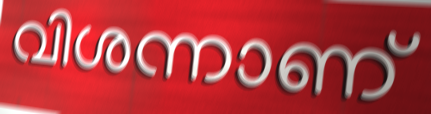
വിശന്നാണ്